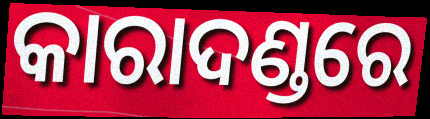
କାରାଦଣ୍ଡରେ